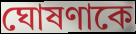
ঘোষণাকে